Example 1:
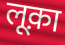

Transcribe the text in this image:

लूक़ा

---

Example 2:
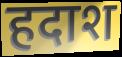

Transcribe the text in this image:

हदाश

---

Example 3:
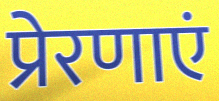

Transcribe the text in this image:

प्रेरणाएं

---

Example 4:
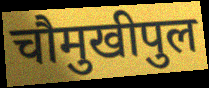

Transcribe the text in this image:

चौमुखीपुल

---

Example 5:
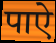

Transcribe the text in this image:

पाऐ